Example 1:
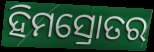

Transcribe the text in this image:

ହିମସ୍ରୋତର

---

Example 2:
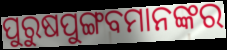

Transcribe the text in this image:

ପୁରୁଷପୁଙ୍ଗବମାନଙ୍କର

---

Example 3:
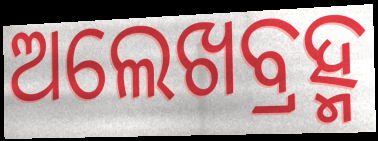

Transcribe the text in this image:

ଅଲେଖବ୍ରହ୍ମ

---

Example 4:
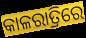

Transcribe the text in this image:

କାଳରାତ୍ରିରେ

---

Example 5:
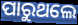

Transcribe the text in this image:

ପାରୁଥଲେ